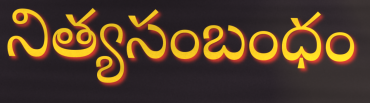
నిత్యసంబంధం